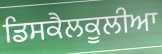
ਡਿਸਕੈਲਕੂਲੀਆ